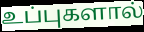
உப்புகளால்